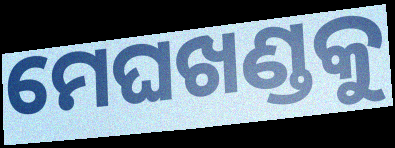
ମେଘଖଣ୍ଡକୁ